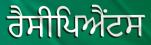
ਰੈਸੀਪਿਐਂਟਸ